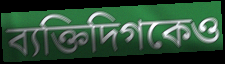
ব্যক্তিদিগকেও